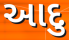
આદુ